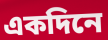
একদিনে